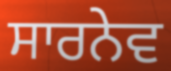
ਸਾਰਨੇਵ